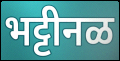
भट्टीनळ